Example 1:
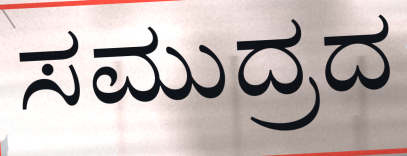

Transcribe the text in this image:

ಸಮುದ್ರದ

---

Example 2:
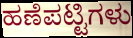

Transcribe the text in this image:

ಹಣೆಪಟ್ಟಿಗಳು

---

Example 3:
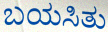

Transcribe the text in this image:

ಬಯಸಿತು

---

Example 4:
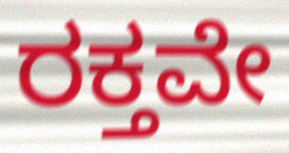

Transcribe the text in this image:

ರಕ್ತವೇ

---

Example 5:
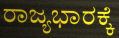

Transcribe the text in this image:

ರಾಜ್ಯಭಾರಕ್ಕೆ